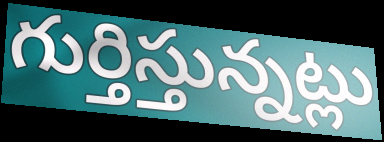
గుర్తిస్తున్నట్లు